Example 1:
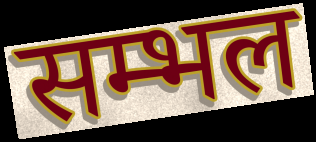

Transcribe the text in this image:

सम्भल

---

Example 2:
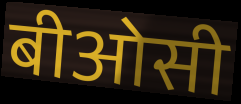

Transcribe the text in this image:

बीओसी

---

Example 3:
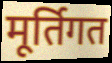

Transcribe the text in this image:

मूर्तिगत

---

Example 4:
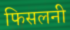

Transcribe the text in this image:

फिसलनी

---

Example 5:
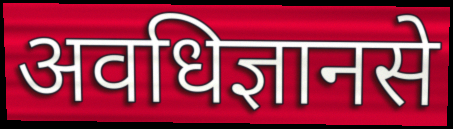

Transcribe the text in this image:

अवधिज्ञानसे